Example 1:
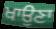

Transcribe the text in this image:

ਖਾਉਣਾ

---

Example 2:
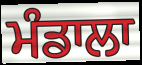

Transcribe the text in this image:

ਮੰਡਾਲਾ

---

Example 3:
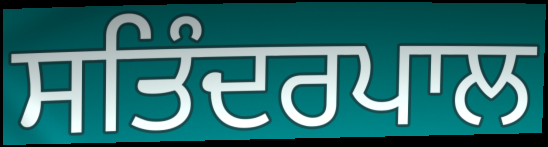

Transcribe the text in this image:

ਸਤਿੰਦਰਪਾਲ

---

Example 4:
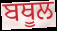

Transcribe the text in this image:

ਬਥੂਲ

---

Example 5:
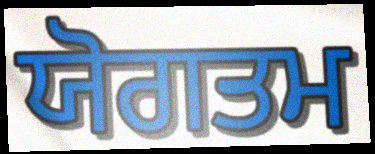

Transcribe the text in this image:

ਯੋਗਤਮ